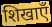
शिखाएँ